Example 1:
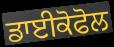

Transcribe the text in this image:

ਡਾਈਕੋਫੋਲ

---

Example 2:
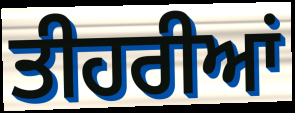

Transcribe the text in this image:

ਤੀਹਰੀਆਂ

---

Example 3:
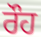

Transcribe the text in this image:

ਰੌਹ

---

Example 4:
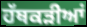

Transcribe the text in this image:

ਹੱਥਕੜੀਆਂ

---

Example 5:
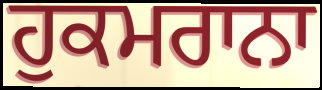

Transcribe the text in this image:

ਹੁਕਮਰਾਨਾ